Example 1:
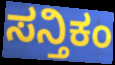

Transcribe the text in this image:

ಸನ್ತಿಕಂ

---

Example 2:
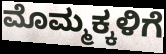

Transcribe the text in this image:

ಮೊಮ್ಮಕ್ಕಳಿಗೆ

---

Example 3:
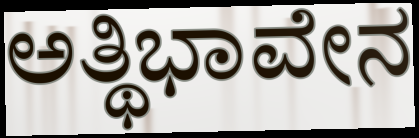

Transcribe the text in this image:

ಅತ್ಥಿಭಾವೇನ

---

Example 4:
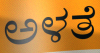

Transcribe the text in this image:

ಅಳತೆ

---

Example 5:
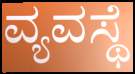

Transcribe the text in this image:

ವ್ಯವಸ್ಥೆ